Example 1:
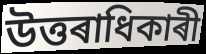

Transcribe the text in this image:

উত্তৰাধিকাৰী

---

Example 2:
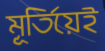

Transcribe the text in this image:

মূৰ্তিয়েই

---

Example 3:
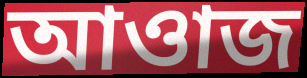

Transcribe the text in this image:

আওাজ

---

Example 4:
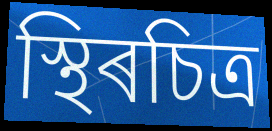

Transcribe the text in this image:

স্থিৰচিত্ৰ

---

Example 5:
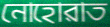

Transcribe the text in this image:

নোহোৱাত